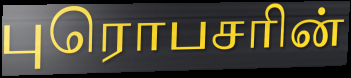
புரொபசரின்